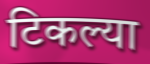
टिकल्या